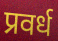
प्रवर्ध